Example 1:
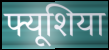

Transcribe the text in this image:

फ्यूशिया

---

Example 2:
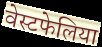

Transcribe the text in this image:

वेस्टफेलिया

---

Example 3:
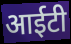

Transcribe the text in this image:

आईटी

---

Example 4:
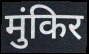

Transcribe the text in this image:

मुंकिर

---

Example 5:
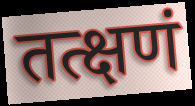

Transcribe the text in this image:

तत्क्षणं